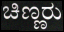
ಚಿಣ್ಣರು